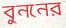
বুননের